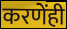
करणेंही